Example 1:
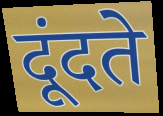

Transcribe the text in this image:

दूंदते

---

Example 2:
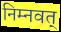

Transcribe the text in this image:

निम्नवत्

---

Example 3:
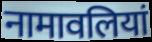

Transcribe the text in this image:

नामावलियां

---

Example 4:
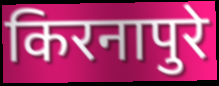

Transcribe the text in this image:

किरनापुरे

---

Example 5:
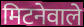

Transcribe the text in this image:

मिटनेवाले